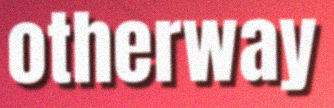
otherway